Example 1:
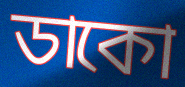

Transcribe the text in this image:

ডাকো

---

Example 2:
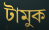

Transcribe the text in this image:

টামুক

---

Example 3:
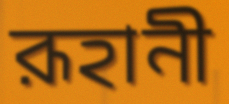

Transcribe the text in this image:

রূহানী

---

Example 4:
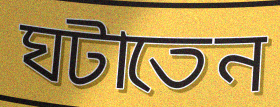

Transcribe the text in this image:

ঘটাতেন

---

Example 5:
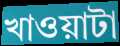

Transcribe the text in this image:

খাওয়াটা